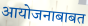
आयोजनाबाबत